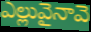
ఎల్లువైనావె